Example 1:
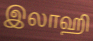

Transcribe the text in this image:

இலாஹி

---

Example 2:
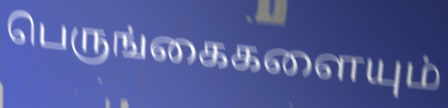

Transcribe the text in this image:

பெருங்கைகளையும்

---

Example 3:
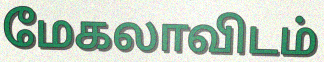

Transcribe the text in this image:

மேகலாவிடம்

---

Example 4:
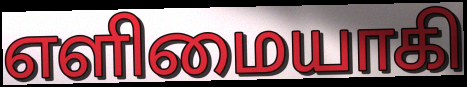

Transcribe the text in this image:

எளிமையாகி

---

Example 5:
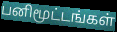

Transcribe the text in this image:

பனிமூட்டங்கள்